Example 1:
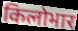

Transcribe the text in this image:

किलोभार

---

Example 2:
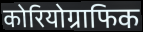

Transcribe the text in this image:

कोरियोग्राफिक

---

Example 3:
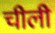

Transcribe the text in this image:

चीली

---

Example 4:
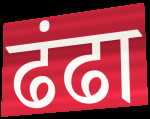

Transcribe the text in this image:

ढंढा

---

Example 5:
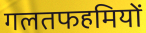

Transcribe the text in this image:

गलतफहमियों